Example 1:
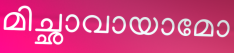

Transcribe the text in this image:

മിച്ഛാവായാമോ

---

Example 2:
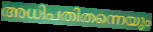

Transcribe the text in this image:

അധിപതിതന്നെയും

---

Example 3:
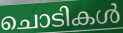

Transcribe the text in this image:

ചൊടികൾ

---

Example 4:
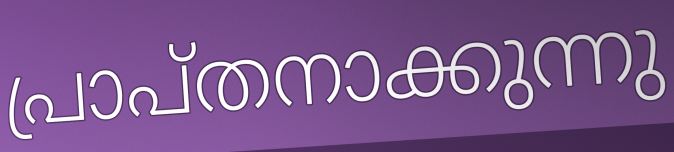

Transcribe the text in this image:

പ്രാപ്തനാക്കുന്നു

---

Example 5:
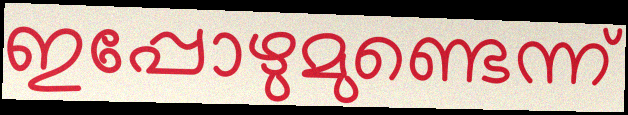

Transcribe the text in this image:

ഇപ്പോഴുമുണ്ടെന്ന്